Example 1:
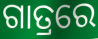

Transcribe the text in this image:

ଗାତ୍ରରେ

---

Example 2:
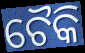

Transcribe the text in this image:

ଚୈକି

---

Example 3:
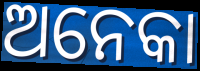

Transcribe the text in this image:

ଅନେକା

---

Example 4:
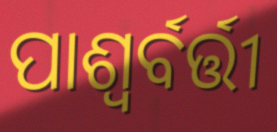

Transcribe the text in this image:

ପାଶ୍ୱର୍ବର୍ତ୍ତୀ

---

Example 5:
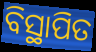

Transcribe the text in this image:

ବିସ୍ଥାପିତ